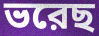
ভরেছ